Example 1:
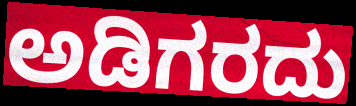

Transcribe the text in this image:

ಅಡಿಗರದು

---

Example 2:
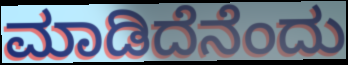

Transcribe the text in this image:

ಮಾಡಿದೆನೆಂದು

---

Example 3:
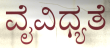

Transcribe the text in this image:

ವೈವಿಧ್ಯತೆ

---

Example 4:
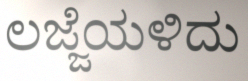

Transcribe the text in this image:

ಲಜ್ಜೆಯಳಿದು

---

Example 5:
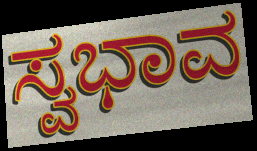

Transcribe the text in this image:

ಸ್ವಭಾವ